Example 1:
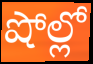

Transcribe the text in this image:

షోల్లో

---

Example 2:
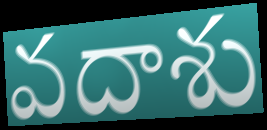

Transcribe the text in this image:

వదాశు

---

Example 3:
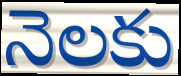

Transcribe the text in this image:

నెలకు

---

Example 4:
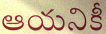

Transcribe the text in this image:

ఆయనికీ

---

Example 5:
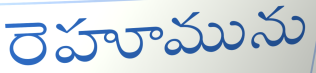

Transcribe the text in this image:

రెహూమును